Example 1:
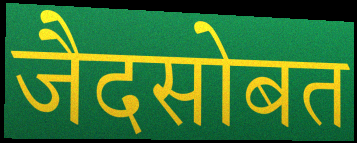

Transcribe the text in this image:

जैदसोबत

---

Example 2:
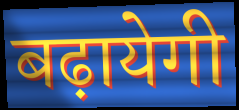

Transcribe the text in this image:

बढ़ायेगी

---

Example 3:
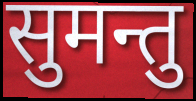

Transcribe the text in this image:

सुमन्तु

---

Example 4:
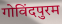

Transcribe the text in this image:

गोविंदपुरम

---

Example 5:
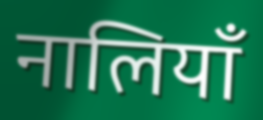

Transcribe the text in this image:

नालियाँ